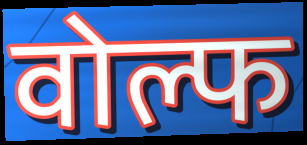
वोल्फ